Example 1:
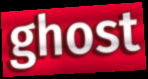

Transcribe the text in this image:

ghost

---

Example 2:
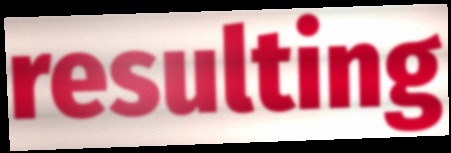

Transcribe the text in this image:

resulting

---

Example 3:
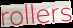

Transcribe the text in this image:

rollers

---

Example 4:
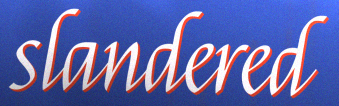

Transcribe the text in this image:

slandered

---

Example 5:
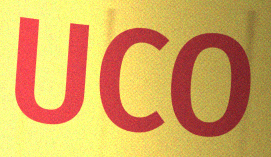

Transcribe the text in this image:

UCO